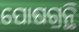
ପୋଷଗ୍ରନ୍ଥି